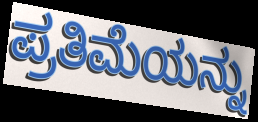
ಪ್ರತಿಮೆಯನ್ನು